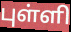
புள்ளி